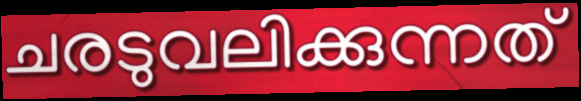
ചരടുവലിക്കുന്നത്